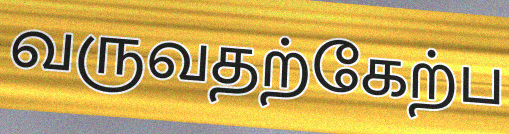
வருவதற்கேற்ப